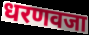
धरणवजा